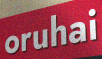
oruhai